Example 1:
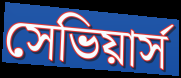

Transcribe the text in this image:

সেভিয়ার্স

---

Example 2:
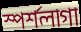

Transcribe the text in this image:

স্পর্শলাগা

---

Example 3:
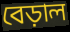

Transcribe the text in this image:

বেড়াল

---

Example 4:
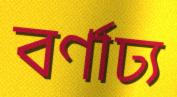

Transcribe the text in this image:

বর্ণাঢ্য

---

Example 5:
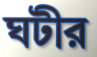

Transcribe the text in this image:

ঘটীর